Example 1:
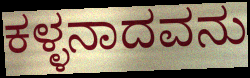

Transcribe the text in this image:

ಕಳ್ಳನಾದವನು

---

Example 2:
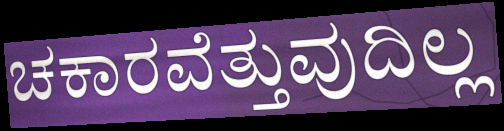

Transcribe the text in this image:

ಚಕಾರವೆತ್ತುವುದಿಲ್ಲ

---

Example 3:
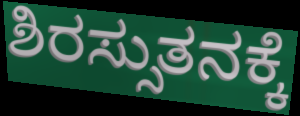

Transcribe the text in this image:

ಶಿರಸ್ಸುತನಕ್ಕೆ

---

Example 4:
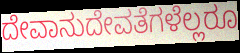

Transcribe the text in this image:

ದೇವಾನುದೇವತೆಗಳೆಲ್ಲರೂ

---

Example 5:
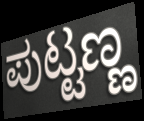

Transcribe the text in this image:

ಪುಟ್ಟಣ್ಣ